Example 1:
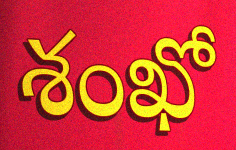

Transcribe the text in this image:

శంఖో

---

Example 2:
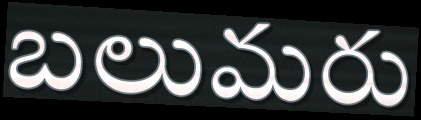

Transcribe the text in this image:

బలుమరు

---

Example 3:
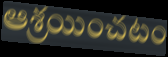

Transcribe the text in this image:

ఆశ్రయించటం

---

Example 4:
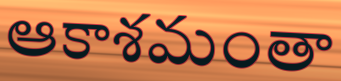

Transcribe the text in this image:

ఆకాశమంతా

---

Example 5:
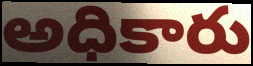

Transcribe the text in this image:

అధికారు